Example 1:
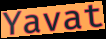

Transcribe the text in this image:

Yavat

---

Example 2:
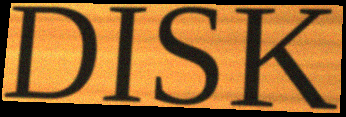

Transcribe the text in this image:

DISK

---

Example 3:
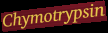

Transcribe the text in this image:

Chymotrypsin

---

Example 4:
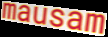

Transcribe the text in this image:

mausam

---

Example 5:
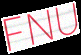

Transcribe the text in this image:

FNU